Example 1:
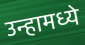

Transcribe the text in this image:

उन्हामध्ये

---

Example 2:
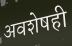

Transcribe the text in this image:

अवशेषही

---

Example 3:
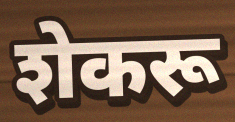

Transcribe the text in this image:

शेकरू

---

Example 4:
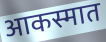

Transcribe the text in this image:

आकस्मात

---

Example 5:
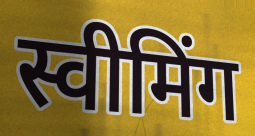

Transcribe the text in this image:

स्वीमिंग